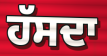
ਹੱਸਦਾ